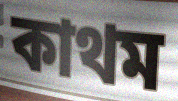
কাথম